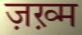
ज़ख़्म